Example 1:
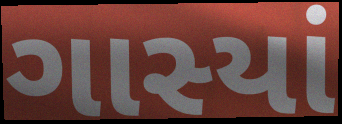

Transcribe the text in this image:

ગાસ્યાં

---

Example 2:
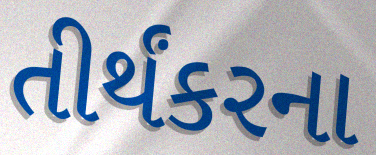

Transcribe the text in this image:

તીર્થંકરના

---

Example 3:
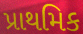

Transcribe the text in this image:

પ્રાથમિક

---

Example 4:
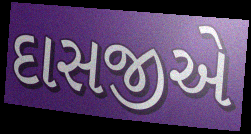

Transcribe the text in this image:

દાસજીએ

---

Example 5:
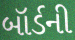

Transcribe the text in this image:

બૉર્ડની